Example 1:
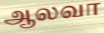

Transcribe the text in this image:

ஆலவா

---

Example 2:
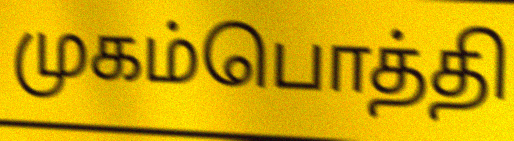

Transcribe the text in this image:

முகம்பொத்தி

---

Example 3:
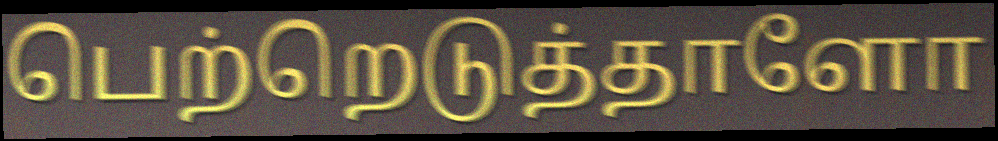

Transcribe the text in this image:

பெற்றெடுத்தாளோ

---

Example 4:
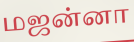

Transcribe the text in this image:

மஜன்னா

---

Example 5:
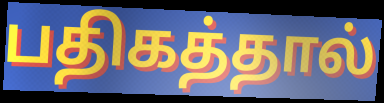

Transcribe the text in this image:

பதிகத்தால்